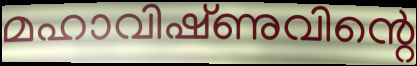
മഹാവിഷ്‌ണുവിന്റെ